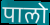
पालो